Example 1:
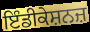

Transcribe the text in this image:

ਇੰਡੀਕੇਸ਼ਨਜ਼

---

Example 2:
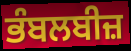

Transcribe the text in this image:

ਭੰਬਲਬੀਜ਼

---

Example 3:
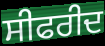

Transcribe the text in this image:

ਸੀਫਰੀਦ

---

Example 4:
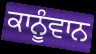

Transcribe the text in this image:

ਕਾਨੂੰਵਾਨ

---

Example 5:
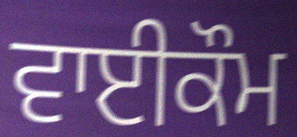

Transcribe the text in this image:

ਵਾਈਕੌਮ